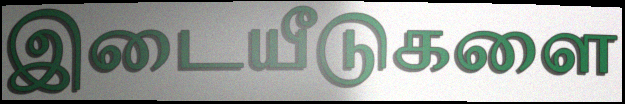
இடையீடுகளை